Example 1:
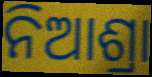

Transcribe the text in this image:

ନିଆଶ୍ରା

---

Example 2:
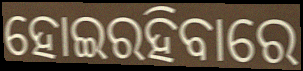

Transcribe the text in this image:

ହୋଇରହିବାରେ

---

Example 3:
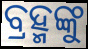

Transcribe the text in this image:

ବ୍ରହ୍ମଙ୍କୁ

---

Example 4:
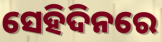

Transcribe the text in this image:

ସେହିଦିନରେ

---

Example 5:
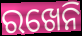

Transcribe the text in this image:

ରଖେନି